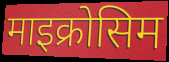
माइक्रोसिम